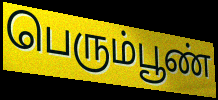
பெரும்பூண்